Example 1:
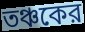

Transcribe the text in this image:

তঞ্চকের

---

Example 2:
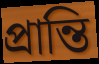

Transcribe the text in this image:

প্রান্তি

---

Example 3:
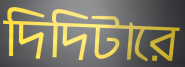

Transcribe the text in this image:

দিদিটারে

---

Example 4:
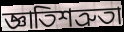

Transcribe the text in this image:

জ্ঞাতিশত্রুতা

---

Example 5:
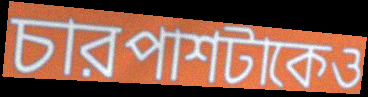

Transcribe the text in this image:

চারপাশটাকেও